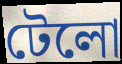
টেলো